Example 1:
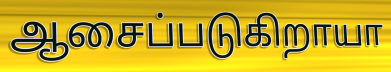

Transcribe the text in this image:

ஆசைப்படுகிறாயா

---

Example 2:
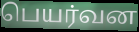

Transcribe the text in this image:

பெயர்வன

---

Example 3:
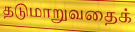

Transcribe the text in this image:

தடுமாறுவதைக்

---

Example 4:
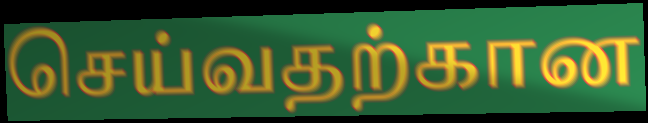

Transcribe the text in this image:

செய்வதற்கான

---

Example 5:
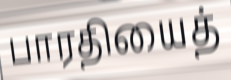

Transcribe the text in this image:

பாரதியைத்